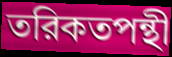
তরিকতপন্থী